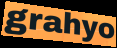
grahyo